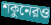
শকুনেরও